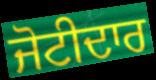
ਜੋਟੀਦਾਰ